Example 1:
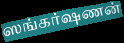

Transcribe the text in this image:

ஸங்கர்ஷணன்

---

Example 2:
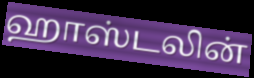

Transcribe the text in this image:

ஹாஸ்டலின்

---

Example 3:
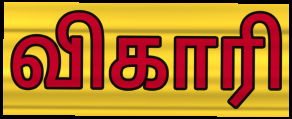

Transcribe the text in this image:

விகாரி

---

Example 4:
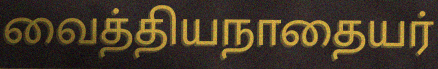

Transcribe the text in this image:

வைத்தியநாதையர்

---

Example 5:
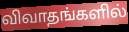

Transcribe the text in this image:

விவாதங்களில்